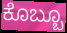
ಕೊಬ್ಬೂ